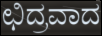
ಛಿದ್ರವಾದ